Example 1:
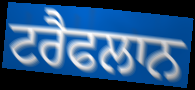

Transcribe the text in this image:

ਟਰੈਫਲਾਨ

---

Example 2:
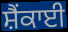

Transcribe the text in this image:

ਸ਼ੈਂਕਾਈ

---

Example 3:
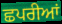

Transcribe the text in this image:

ਛਪਰੀਆਂ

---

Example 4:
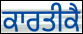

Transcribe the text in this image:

ਕਾਰਤੀਕੈ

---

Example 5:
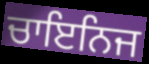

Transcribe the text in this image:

ਚਾਇਨਿਜ